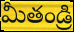
మీతండ్రి